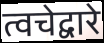
त्वचेद्वारे